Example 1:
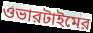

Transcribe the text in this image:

ওভারটাইমের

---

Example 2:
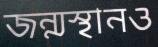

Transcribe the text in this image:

জন্মস্থানও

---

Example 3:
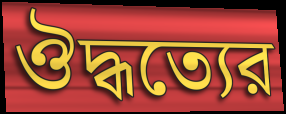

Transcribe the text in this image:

ঔদ্ধত্যের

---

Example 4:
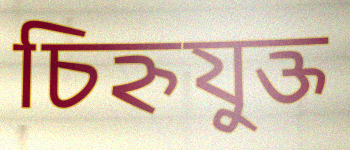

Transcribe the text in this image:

চিহ্নযুক্ত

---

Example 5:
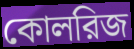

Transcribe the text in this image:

কোলরিজ